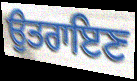
ਉਤਰਾਇਣ